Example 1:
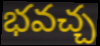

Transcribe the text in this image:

భవచ్చ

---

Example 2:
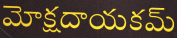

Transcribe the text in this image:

మోక్షదాయకమ్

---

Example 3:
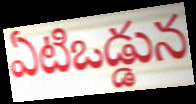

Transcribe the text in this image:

ఏటిఒడ్డున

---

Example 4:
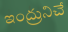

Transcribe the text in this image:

ఇంద్రునిచే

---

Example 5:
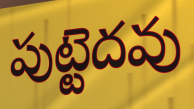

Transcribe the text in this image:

పుట్టెదవు